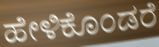
ಹೇಳಿಕೊಂಡರೆ